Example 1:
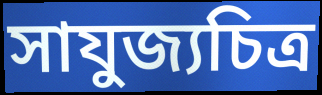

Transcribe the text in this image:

সাযুজ্যচিত্র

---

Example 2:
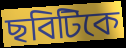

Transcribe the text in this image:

ছবিটিকে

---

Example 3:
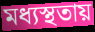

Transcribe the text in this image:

মধ্যস্থতায়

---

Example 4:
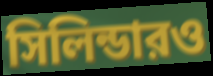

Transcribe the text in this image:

সিলিন্ডারও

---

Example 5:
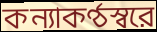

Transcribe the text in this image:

কন্যাকণ্ঠস্বরে